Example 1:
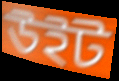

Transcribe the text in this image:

উইট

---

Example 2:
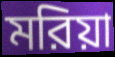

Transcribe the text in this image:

মরিয়া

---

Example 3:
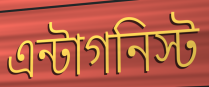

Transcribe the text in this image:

এন্টাগনিস্ট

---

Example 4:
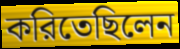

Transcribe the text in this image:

করিতেছিলেন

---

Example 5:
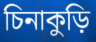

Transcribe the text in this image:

চিনাকুড়ি